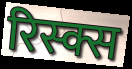
रिस्क्स